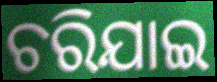
ଚରିଯାଇ